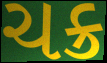
ચક્ર